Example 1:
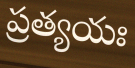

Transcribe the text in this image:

ప్రత్యయః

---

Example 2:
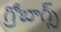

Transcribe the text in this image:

గ్రోబాగ్స్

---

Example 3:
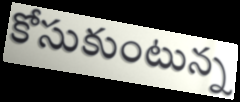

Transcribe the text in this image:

కోసుకుంటున్న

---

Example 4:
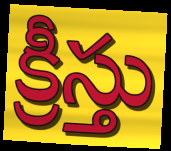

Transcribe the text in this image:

క్రీస్తు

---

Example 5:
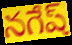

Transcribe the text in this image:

నగేష్